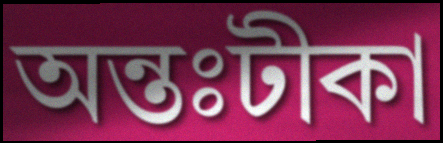
অন্তঃটীকা